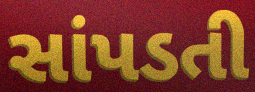
સાંપડતી